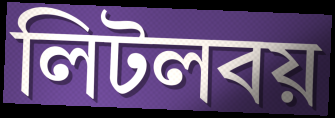
লিটলবয়